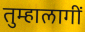
तुम्हालागीं